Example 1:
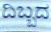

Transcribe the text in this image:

ದಿಬ್ಬದ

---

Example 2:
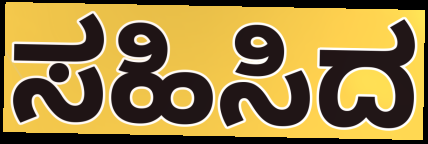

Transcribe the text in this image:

ಸಹಿಸಿದ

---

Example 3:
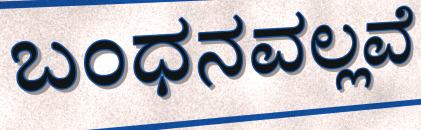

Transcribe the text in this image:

ಬಂಧನವಲ್ಲವೆ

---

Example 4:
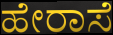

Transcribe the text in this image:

ಹೇರಾಸೆ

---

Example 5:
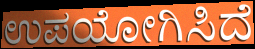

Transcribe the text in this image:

ಉಪಯೋಗಿಸಿದೆ